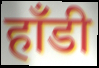
हाँडी